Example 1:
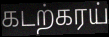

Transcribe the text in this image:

கடற்கரய்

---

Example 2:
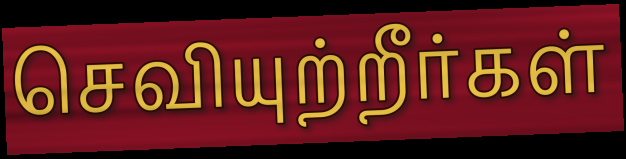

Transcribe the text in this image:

செவியுற்றீர்கள்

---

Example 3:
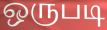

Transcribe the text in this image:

ஒருபடி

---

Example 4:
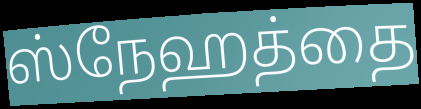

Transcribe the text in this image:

ஸ்நேஹத்தை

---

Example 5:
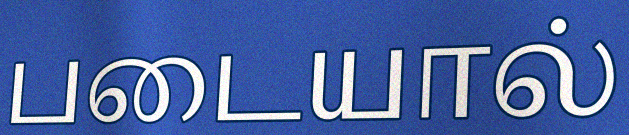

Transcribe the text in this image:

படையால்